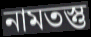
নামতস্তু